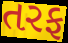
તરફ